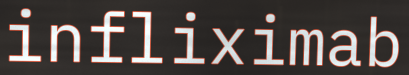
infliximab